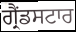
ਗ੍ਰੈਂਡਸਟਾਰ